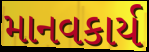
માનવકાર્ય